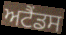
ਅਟੈਂਡਸ